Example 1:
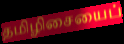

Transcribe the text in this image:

தமிழிசையைப்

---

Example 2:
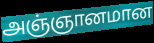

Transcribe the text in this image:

அஞ்ஞானமான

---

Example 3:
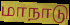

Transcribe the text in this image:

மாநாடு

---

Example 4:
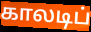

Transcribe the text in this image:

காலடிப்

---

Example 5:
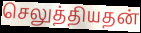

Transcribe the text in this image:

செலுத்தியதன்